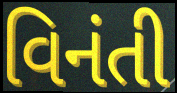
વિનંતી